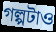
গল্পটাও